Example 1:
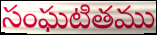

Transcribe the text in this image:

సంఘటితము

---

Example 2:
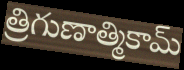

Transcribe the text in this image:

త్రిగుణాత్మికామ్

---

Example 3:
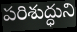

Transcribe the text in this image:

పరిశుద్ధుని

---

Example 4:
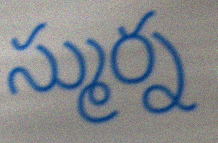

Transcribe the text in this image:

స్ముర్న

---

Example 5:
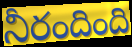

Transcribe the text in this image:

నీరందింది